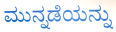
ಮುನ್ನಡೆಯನ್ನು